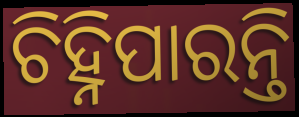
ଚିହ୍ନିପାରନ୍ତି